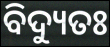
ବିଦ୍ୟୁତଃ